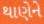
થાણેને